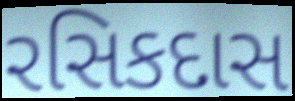
રસિકદાસ